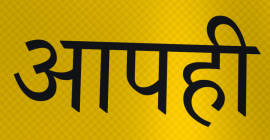
आपही